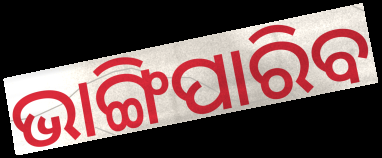
ଭାଙ୍ଗିପାରିବ